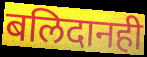
बलिदानही